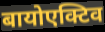
बायोएक्टिव